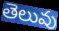
తెలువు